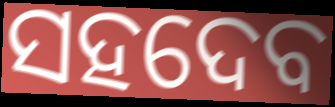
ସହଦେବ